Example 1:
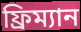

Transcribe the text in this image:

ফ্রিম্যান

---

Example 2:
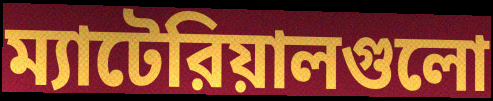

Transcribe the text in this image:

ম্যাটেরিয়ালগুলো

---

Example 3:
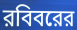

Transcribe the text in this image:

রবিবরের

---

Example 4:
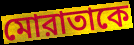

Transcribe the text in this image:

মোরাতাকে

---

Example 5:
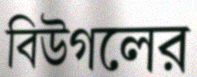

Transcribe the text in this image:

বিউগলের